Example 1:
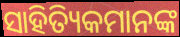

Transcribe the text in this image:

ସାହିତ୍ୟିକମାନଙ୍କ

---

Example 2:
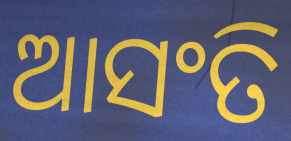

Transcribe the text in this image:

ଆସଂତି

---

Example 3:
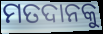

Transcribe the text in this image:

ମତଦାନକୁ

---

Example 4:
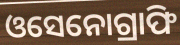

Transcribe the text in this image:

ଓସେନୋଗ୍ରାଫି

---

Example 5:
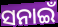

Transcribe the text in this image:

ସନାଇଁ